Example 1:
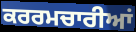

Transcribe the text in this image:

ਕਰਰਮਚਾਰੀਆਂ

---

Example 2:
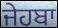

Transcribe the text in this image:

ਜੇਹਬਾ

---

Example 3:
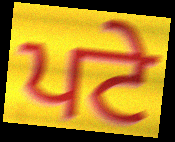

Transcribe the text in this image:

ਪਟੇ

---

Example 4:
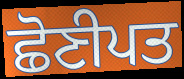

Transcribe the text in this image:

ਛੋਣੀਪਤ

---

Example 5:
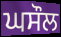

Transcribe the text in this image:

ਘਸੌਲ